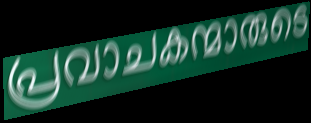
പ്രവാചകന്മാരുടെ